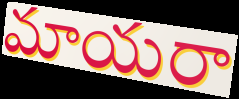
మాయరా